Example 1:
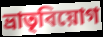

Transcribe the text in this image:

ভ্রাতৃবিয়োগ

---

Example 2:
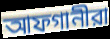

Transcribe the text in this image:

আফগানীরা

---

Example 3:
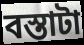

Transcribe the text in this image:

বস্তাটা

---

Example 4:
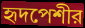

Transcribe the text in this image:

হৃদপেশীর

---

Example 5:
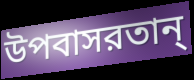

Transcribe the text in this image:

উপবাসরতান্